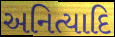
અનિત્યાદિ